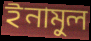
ইনামুল